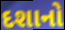
દશાનો